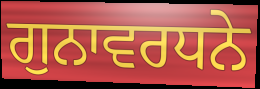
ਗੁਨਾਵਰਧਨੇ